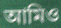
আমিও